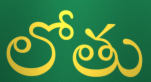
లోతు